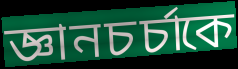
জ্ঞানচর্চাকে